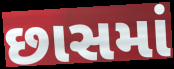
છાસમાં